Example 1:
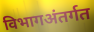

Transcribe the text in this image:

विभागअंतर्गत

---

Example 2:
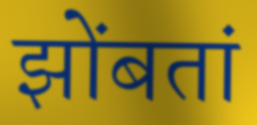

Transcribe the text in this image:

झोंबतां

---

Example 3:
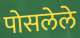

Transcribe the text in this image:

पोसलेले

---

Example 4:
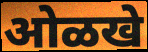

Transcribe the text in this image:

ओळखे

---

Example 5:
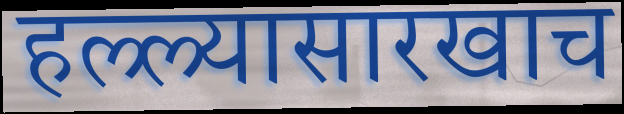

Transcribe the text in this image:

हल्ल्यासारखाच